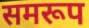
समरूप